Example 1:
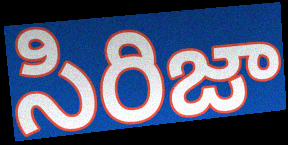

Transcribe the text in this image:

సిరిజా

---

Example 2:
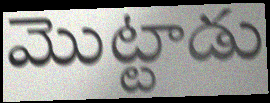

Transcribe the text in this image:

మొట్టాడు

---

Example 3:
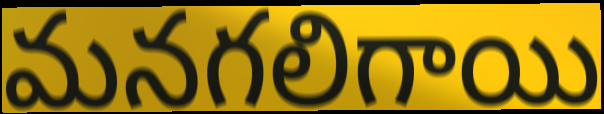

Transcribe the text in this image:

మనగలిగాయి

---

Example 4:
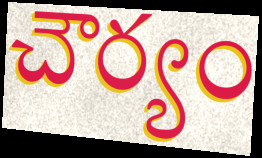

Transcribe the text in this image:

చౌర్యం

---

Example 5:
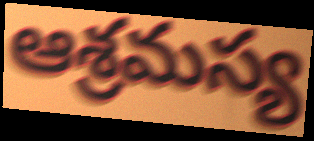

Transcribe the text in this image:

ఆశ్రమస్య